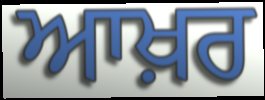
ਆਖ਼ਰ